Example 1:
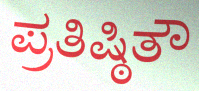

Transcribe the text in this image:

ಪ್ರತಿಷ್ಠಿತೌ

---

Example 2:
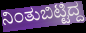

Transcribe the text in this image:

ನಿಂತುಬಿಟ್ಟಿದ್ದ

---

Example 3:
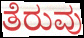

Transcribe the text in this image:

ತೆರುವು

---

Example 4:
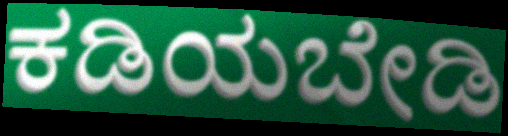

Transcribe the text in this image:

ಕಡಿಯಬೇಡಿ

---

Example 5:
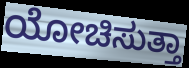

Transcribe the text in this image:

ಯೋಚಿಸುತ್ತಾ